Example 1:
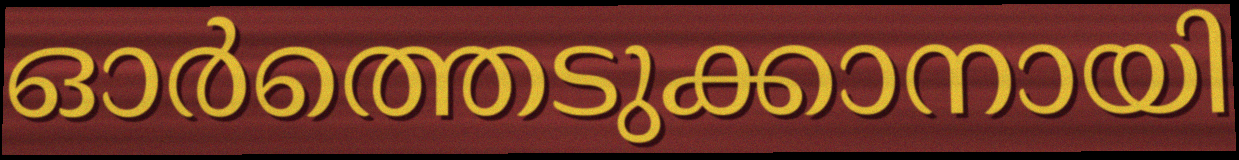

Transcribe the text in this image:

ഓർത്തെടുക്കാനായി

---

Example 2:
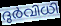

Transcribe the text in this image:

ദുർവിധി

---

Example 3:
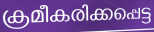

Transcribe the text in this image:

ക്രമീകരിക്കപ്പെട്ട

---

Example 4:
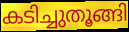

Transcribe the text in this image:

കടിച്ചുതൂങ്ങി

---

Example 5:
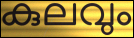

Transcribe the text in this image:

കുലവും